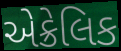
એક્રેલિક